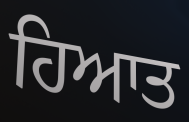
ਹਿਆਤ